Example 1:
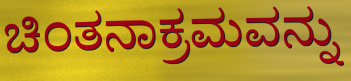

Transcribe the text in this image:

ಚಿಂತನಾಕ್ರಮವನ್ನು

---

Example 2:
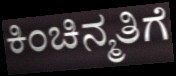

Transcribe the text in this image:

ಕಿಂಚಿನ್ಮತಿಗೆ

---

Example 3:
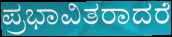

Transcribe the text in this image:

ಪ್ರಭಾವಿತರಾದರೆ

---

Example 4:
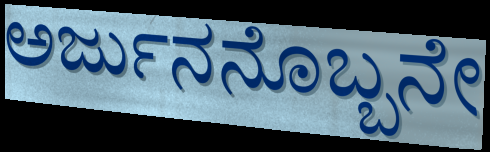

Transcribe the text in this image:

ಅರ್ಜುನನೊಬ್ಬನೇ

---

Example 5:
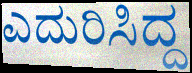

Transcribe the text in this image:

ಎದುರಿಸಿದ್ದ